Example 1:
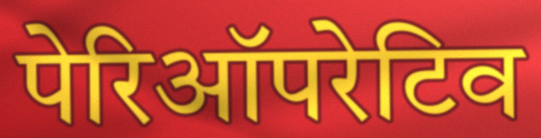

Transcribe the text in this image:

पेरिऑपरेटिव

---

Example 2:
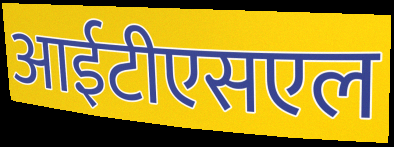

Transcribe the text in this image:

आईटीएसएल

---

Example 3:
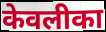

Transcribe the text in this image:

केवलीका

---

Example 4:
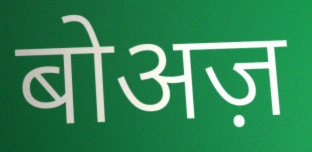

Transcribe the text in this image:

बोअज़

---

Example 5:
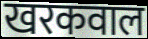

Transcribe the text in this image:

खरकवाल